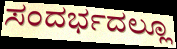
ಸಂದರ್ಭದಲ್ಲೂ